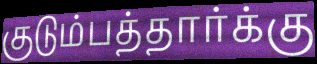
குடும்பத்தார்க்கு